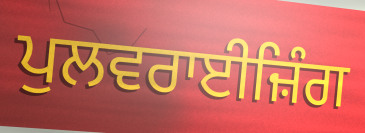
ਪੁਲਵਰਾਈਜ਼ਿੰਗ